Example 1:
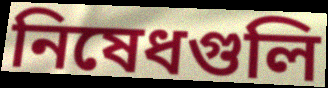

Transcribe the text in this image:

নিষেধগুলি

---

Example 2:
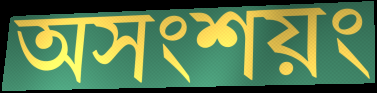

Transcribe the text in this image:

অসংশয়ং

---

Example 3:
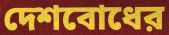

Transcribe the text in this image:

দেশবোধের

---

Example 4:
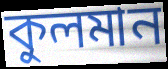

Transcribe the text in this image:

কুলমান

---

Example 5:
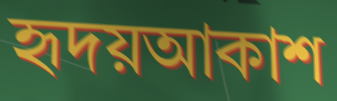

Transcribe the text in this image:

হৃদয়আকাশ